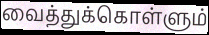
வைத்துக்கொள்ளும்